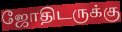
ஜோதிடருக்கு